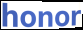
honor